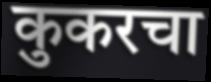
कुकरचा